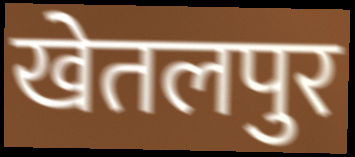
खेतलपुर